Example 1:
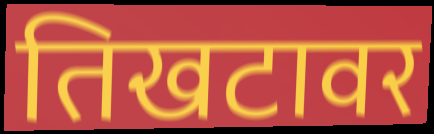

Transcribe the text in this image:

तिखटावर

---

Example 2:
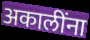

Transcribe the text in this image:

अकालींना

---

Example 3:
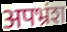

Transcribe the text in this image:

अपभ्रंश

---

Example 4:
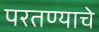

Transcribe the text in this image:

परतण्याचे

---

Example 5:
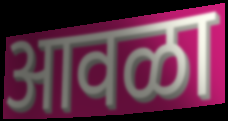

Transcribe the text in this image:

आवळा